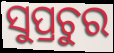
ସୁପ୍ରଚୁର